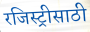
रजिस्ट्रीसाठी